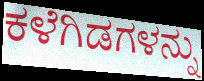
ಕಳೆಗಿಡಗಳನ್ನು